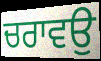
ਚਰਾਵਉ